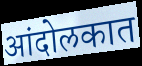
आंदोलकात